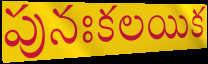
పునఃకలయిక